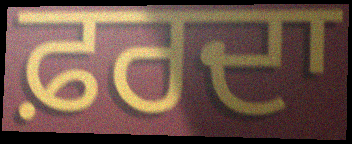
ਫ਼ਰਦਾ